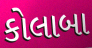
કોલાબા